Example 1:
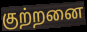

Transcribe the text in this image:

குற்றனை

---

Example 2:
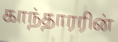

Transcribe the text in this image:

காந்தாரரின்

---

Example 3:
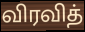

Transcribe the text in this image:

விரவித்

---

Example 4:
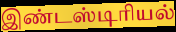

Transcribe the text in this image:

இண்டஸ்டிரியல்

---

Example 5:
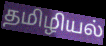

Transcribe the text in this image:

தமிழியல்